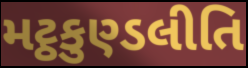
મટ્ઠકુણ્ડલીતિ